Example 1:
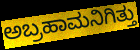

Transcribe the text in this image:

ಅಬ್ರಹಾಮನಿಗಿತ್ತು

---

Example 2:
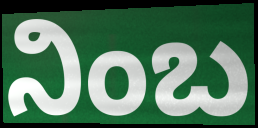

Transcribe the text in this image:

ನಿಂಬ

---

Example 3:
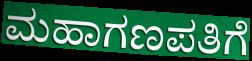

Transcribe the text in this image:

ಮಹಾಗಣಪತಿಗೆ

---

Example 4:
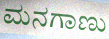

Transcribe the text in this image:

ಮನಗಾಣು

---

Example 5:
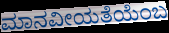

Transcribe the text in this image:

ಮಾನವೀಯತೆಯೆಂಬ